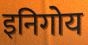
इनिगोय